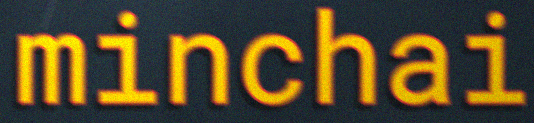
minchai